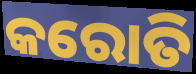
କରୋତି